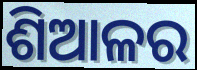
ଶିଆଳର